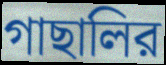
গাছালির